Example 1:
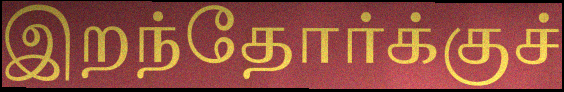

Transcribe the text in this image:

இறந்தோர்க்குச்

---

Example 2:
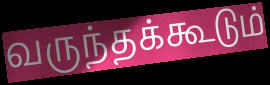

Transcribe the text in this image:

வருந்தக்கூடும்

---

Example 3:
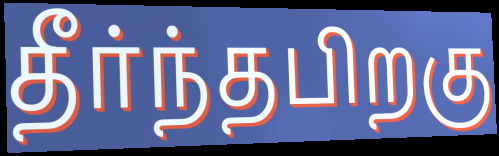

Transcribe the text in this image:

தீர்ந்தபிறகு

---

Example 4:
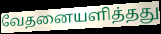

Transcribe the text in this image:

வேதனையளித்தது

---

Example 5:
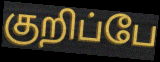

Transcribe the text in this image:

குறிப்பே